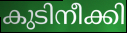
കുടിനീക്കി